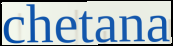
chetana